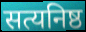
सत्यनिष्ठ